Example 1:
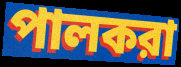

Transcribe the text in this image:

পালকরা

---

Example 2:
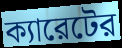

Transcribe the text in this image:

ক্যারেটের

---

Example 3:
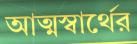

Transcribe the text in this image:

আত্মস্বার্থের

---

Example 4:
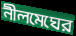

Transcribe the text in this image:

নীলমেঘের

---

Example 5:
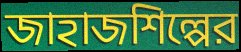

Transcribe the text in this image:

জাহাজশিল্পের